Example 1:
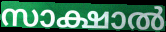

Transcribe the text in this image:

സാക്ഷാൽ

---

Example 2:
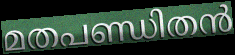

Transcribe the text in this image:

മതപണ്ഡിതൻ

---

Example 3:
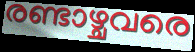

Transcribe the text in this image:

രണ്ടാഴ്ചവരെ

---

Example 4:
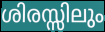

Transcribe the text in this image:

ശിരസ്സിലും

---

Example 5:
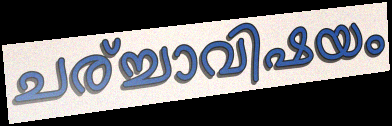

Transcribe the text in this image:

ചര്ച്ചാവിഷയം